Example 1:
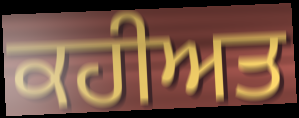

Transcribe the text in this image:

ਕਹੀਅਤ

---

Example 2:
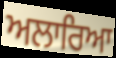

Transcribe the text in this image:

ਅਲਾਰਿਆ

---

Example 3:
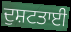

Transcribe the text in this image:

ਦੁਸ਼ਟਤਾਈ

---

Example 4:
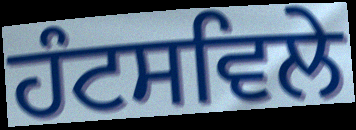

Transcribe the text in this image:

ਹੰਟਸਵਿਲੇ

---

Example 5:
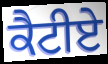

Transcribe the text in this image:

ਕੈਟੀਏ